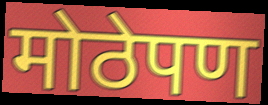
मोठेपण